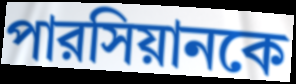
পারসিয়ানকে